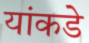
यांकडे